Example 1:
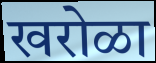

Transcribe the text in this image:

खरोळा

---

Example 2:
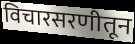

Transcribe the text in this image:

विचारसरणीतून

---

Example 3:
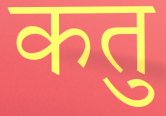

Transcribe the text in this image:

कतु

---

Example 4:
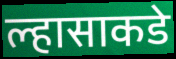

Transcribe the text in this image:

ल्हासाकडे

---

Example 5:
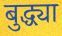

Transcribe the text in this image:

बुद्ध्या